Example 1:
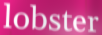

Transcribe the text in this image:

lobster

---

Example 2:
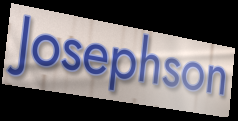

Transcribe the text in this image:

Josephson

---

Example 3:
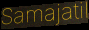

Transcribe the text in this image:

Samajatil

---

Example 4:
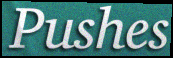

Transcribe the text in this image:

Pushes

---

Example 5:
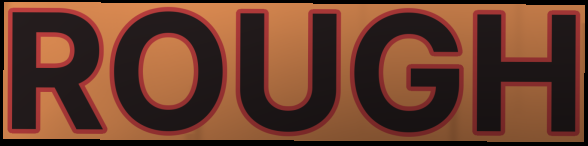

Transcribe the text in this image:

ROUGH